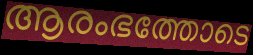
ആരംഭത്തോടെ